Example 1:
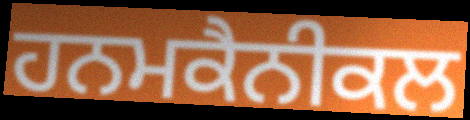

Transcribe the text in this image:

ਹਨਮਕੈਨੀਕਲ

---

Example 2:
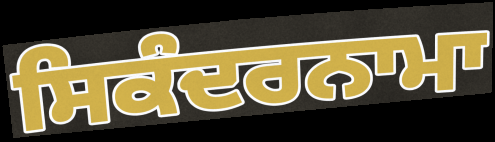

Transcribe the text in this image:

ਸਿਕੰਦਰਨਾਮਾ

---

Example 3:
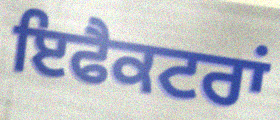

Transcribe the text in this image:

ਇਫੈਕਟਰਾਂ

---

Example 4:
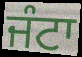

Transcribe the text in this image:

ਜੰਟਾ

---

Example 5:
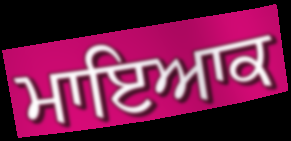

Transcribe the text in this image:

ਮਾਇਆਕ